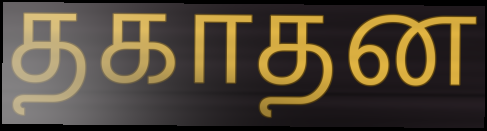
தகாதன